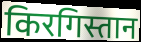
किरगिस्तान